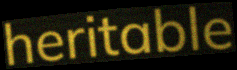
heritable